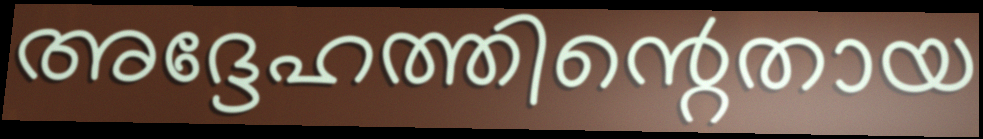
അദ്ദേഹത്തിന്റെതായ